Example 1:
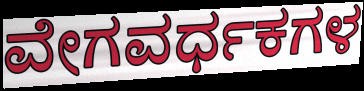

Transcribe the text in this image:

ವೇಗವರ್ಧಕಗಳ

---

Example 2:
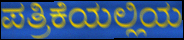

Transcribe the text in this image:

ಪತ್ರಿಕೆಯಲ್ಲಿಯ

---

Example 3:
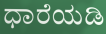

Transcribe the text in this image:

ಧಾರೆಯಡಿ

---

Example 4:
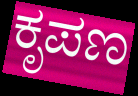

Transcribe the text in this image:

ಕೃಪಣ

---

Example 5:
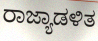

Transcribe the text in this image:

ರಾಜ್ಯಾಡಳಿತ